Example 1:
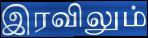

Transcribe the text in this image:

இரவிலும்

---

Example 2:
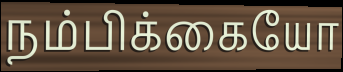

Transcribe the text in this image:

நம்பிக்கையோ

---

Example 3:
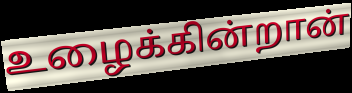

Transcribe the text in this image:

உழைக்கின்றான்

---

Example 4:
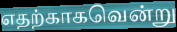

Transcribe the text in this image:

எதற்காகவென்று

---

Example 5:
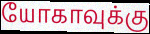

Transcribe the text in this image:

யோகாவுக்கு